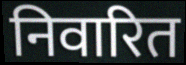
निवारित